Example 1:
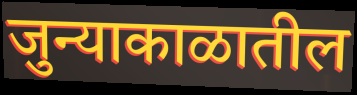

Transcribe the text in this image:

जुन्याकाळातील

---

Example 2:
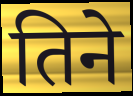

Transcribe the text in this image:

तिने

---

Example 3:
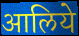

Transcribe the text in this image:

आलिये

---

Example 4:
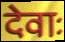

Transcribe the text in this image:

देवाः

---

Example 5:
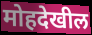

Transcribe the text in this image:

मोहदेखील